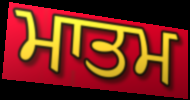
ਮਾਤਮ